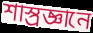
শাস্ত্রজ্ঞানে